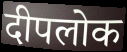
दीपलोक